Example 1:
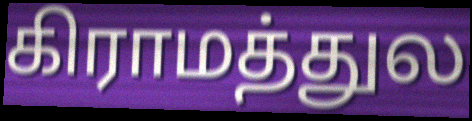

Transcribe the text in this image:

கிராமத்துல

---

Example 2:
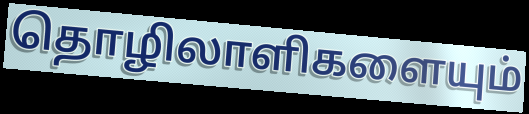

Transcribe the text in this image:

தொழிலாளிகளையும்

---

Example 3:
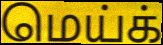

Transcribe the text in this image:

மெய்க்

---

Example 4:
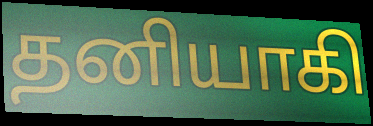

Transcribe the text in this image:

தனியாகி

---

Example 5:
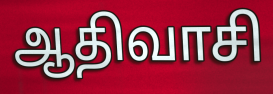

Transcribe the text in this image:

ஆதிவாசி